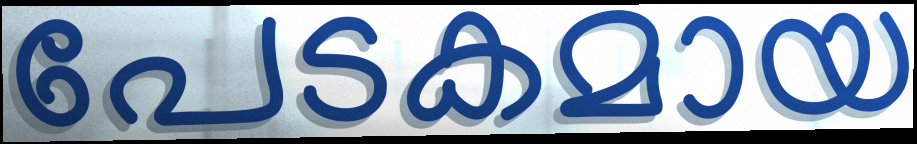
പേടകമായ